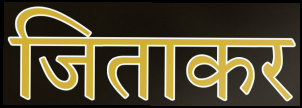
जिताकर